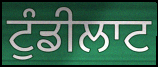
ਟੁੰਡੀਲਾਟ